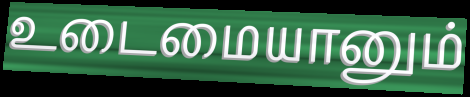
உடைமையானும்